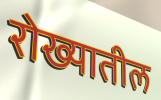
रोख्यातील